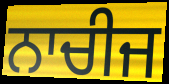
ਨਾਚੀਜ